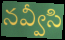
నవ్వీసి